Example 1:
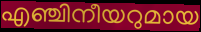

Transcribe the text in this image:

എഞ്ചിനീയറുമായ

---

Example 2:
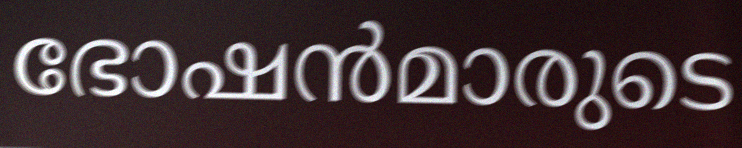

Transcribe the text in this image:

ഭോഷൻമാരുടെ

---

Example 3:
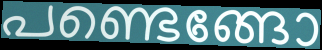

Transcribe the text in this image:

പണ്ടെങ്ങോ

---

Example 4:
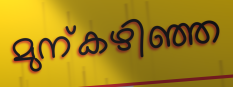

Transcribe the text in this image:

മുന്കഴിഞ്ഞ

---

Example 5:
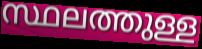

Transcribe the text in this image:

സ്ഥലത്തുള്ള